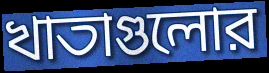
খাতাগুলোর